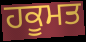
ਹਕੂਮਤ